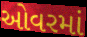
ઓવરમાં